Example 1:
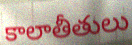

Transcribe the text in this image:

కాలాతీతులు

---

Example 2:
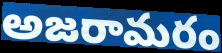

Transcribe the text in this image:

అజరామరం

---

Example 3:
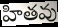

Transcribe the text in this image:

హితవు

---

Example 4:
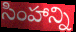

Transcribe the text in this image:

సింహాన్ని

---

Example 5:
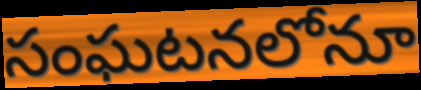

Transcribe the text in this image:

సంఘటనలోనూ